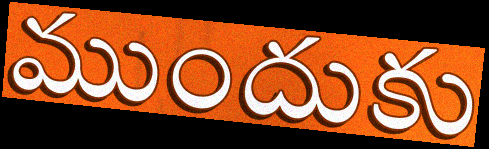
ముందుకు